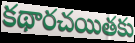
కథారచయితకు